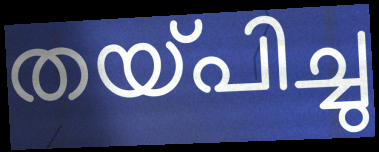
തയ്പിച്ചു